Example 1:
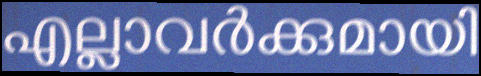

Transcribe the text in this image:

എല്ലാവർക്കുമായി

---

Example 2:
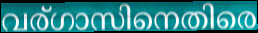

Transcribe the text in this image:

വര്ഗാസിനെതിരെ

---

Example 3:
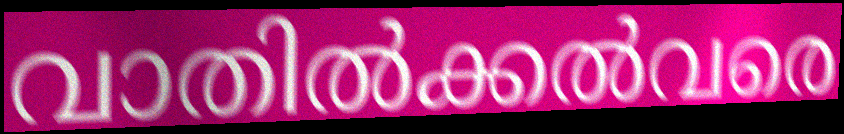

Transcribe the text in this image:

വാതിൽക്കൽവരെ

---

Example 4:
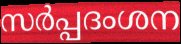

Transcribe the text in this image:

സർപ്പദംശന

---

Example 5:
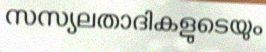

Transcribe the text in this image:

സസ്യലതാദികളുടെയും